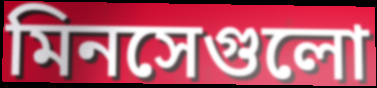
মিনসেগুলো